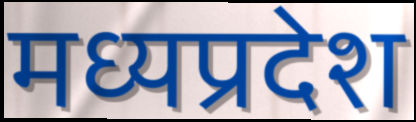
मध्‍यप्रदेश